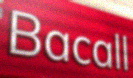
Bacall